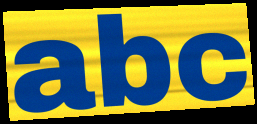
abc